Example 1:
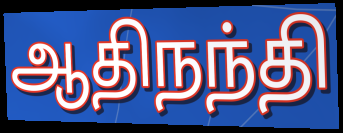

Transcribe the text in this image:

ஆதிநந்தி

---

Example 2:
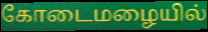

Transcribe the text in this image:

கோடைமழையில்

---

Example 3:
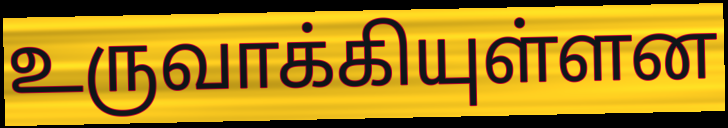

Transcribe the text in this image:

உருவாக்கியுள்ளன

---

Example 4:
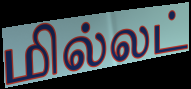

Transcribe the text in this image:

மில்லட்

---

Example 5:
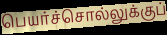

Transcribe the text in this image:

பெயர்ச்சொல்லுக்குப்